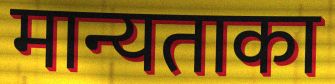
मान्यताका